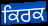
ਕਿਰਕ